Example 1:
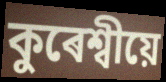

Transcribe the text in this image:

কুৰেশ্বীয়ে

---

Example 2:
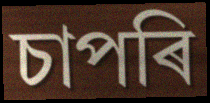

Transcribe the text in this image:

চাপৰি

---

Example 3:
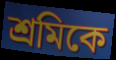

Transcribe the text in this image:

শ্ৰমিকে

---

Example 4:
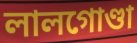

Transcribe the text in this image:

লালগোণ্ডা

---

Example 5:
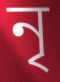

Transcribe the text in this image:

নৃ